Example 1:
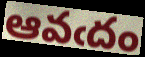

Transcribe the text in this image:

ఆవఁదం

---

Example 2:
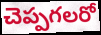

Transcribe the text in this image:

చెప్పగలరో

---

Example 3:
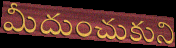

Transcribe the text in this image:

మీదుంచుకుని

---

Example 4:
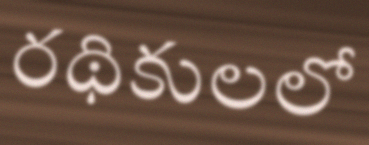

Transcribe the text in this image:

రథికులలో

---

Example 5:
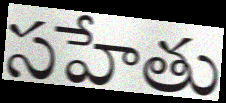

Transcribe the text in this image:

సహేతు